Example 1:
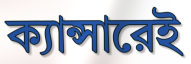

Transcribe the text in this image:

ক্যান্সারেই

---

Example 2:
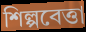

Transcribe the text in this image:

শিল্পবেত্তা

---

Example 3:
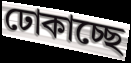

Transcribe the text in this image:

ঢোকাচ্ছে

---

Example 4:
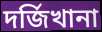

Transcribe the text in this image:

দর্জিখানা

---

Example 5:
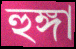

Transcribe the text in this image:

হুঙ্গা